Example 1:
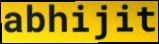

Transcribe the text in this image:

abhijit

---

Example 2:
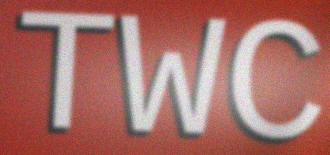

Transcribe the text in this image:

TWC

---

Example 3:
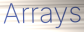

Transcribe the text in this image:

Arrays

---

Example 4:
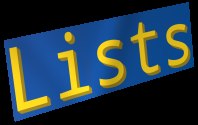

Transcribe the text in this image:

Lists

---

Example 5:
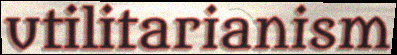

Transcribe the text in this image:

utilitarianism